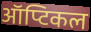
ऑप्टिकल